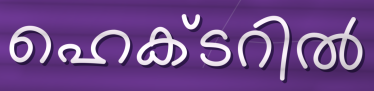
ഹെക്ടറിൽ